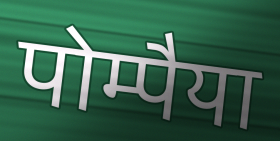
पोम्पैया